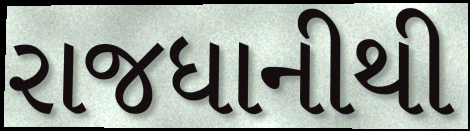
રાજધાનીથી